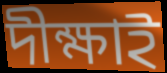
দীক্ষাই